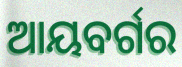
ଆୟବର୍ଗର